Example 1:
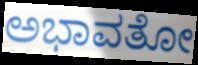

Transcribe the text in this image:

ಅಭಾವತೋ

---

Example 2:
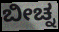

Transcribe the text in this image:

ಬೀಚ್ನ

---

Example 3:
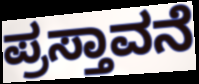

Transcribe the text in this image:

ಪ್ರಸ್ತಾವನೆ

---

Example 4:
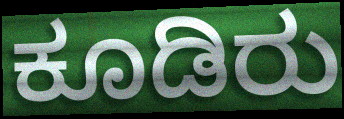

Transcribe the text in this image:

ಕೂಡಿರು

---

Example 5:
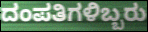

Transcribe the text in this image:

ದಂಪತಿಗಳಿಬ್ಬರು